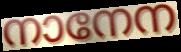
നാനേന